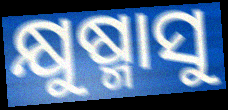
କ୍ଷୁଷ୍ମାସୁ